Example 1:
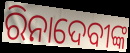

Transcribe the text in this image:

ରିନାଦେବୀଙ୍କ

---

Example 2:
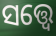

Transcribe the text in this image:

ସତ୍ତ୍ବେ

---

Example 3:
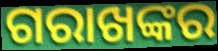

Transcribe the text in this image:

ଗରାଖଙ୍କର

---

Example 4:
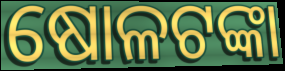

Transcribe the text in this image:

ଷୋଳଟଙ୍କା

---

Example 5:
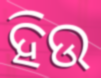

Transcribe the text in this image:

ହିଉ